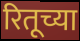
रितूच्या